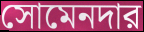
সোমেনদার